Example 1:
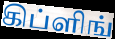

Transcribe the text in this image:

கிப்ளிங்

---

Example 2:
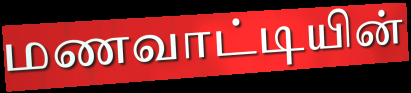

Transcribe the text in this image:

மணவாட்டியின்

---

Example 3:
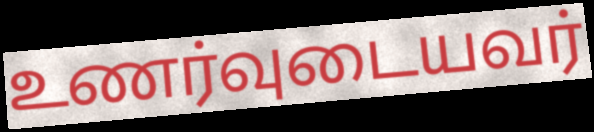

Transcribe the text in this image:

உணர்வுடையவர்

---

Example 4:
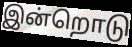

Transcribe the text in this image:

இன்றொடு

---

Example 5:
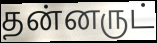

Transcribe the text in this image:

தன்னருட்